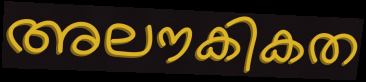
അലൗകികത